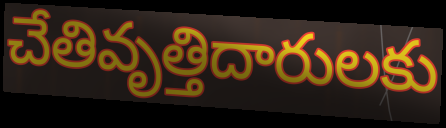
చేతివృత్తిదారులకు